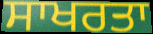
ਸਾਖਰਤਾ